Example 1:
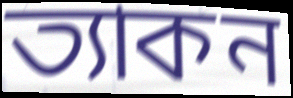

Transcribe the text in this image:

ত্যাকন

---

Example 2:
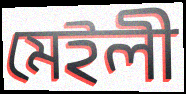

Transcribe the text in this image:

মেইলী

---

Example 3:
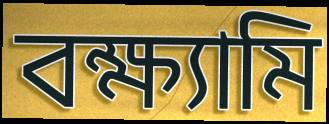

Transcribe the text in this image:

বক্ষ্যামি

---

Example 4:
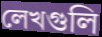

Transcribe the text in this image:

লেখগুলি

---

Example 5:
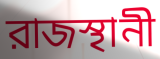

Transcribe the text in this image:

রাজস্থানী